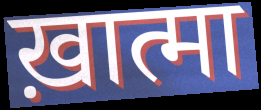
ख़ात्मा